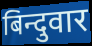
बिन्दुवार